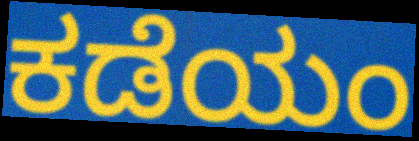
ಕಡೆಯಂ